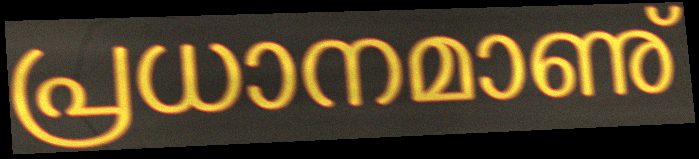
പ്രധാനമാണു്